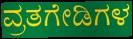
ವ್ರತಗೇಡಿಗಳ